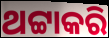
ଥଟ୍ଟାକରି